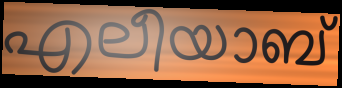
എലീയാബ്